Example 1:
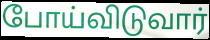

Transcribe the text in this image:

போய்விடுவார்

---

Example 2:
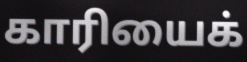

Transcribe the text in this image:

காரியைக்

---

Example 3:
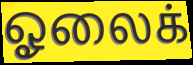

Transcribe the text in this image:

ஓலைக்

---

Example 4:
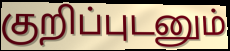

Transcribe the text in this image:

குறிப்புடனும்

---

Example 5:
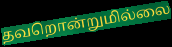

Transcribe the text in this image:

தவறொன்றுமில்லை